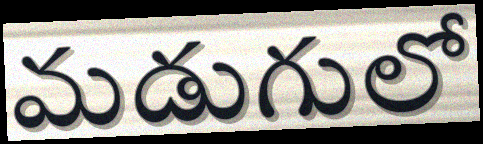
మడుగులో